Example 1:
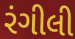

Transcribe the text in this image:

રંગીલી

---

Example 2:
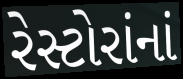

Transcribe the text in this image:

રેસ્ટોરાંનાં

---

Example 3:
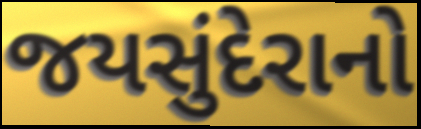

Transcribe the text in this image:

જયસુંદેરાનો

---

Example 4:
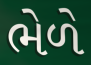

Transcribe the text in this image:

ભેળે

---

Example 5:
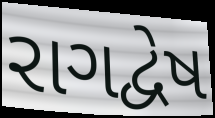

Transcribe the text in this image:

રાગદ્વેષ